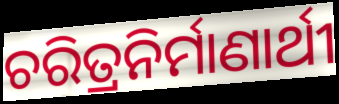
ଚରିତ୍ରନିର୍ମାଣାର୍ଥୀ